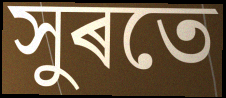
সুৰতে